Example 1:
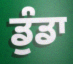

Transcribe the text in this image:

ਡੁੰਡਾ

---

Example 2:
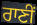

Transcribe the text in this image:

ਰਾਣੀਂ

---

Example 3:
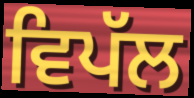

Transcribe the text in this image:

ਵਿਪੱਲ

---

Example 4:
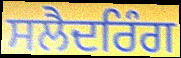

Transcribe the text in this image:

ਸਲੈਦਰਿੰਗ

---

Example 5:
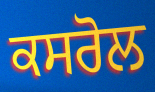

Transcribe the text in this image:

ਕਸਰੋਲ